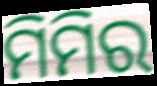
ମିମିର